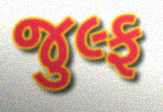
જુલ્ફ